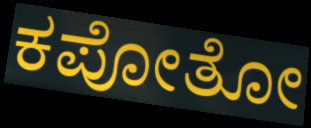
ಕಪೋತೋ